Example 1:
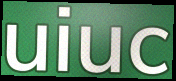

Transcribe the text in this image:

uiuc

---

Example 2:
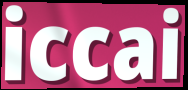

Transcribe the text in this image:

iccai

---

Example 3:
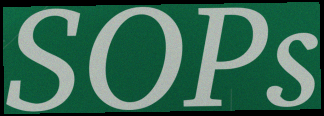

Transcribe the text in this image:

SOPs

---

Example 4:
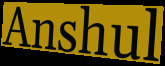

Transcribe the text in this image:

Anshul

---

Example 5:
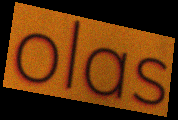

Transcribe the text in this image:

olas